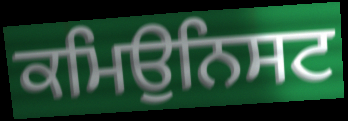
ਕਮਿਉਨਿਸਟ